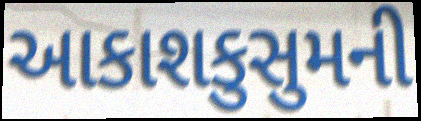
આકાશકુસુમની